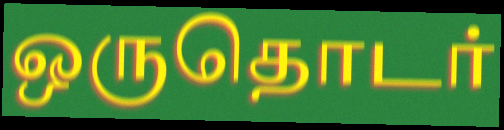
ஒருதொடர்